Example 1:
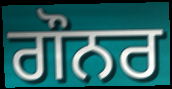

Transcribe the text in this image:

ਗੌਨਰ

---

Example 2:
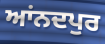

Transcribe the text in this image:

ਆਂਨਦਪੁਰ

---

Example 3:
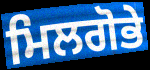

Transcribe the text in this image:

ਮਿਲਗੋਭੇ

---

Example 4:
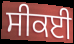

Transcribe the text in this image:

ਸੀਕਈ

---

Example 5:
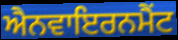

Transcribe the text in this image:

ਐਨਵਾਇਰਨਮੈਂਟ